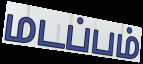
மடப்பம்